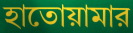
হাতোয়ামার